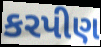
કરપીણ